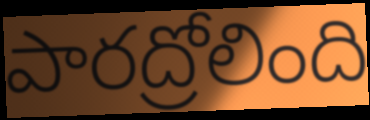
పారద్రోలింది